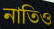
নাতিও